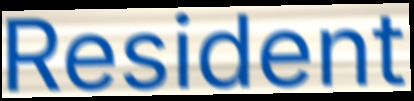
Resident